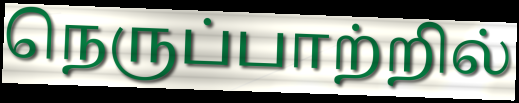
நெருப்பாற்றில்